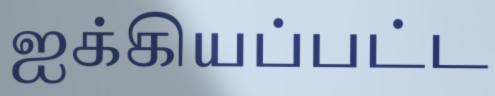
ஐக்கியப்பட்ட